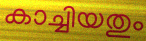
കാച്ചിയതും